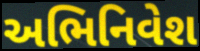
અભિનિવેશ